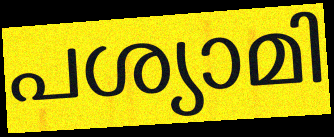
പശ്യാമി